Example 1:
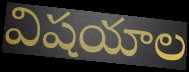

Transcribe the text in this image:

విషయాల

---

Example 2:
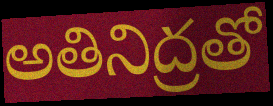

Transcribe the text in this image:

అతినిద్రతో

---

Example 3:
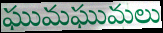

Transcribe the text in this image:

ఘుమఘుమలు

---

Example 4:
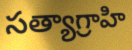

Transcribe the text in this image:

సత్యాగ్రాహి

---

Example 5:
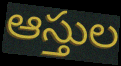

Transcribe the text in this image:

ఆస్తుల